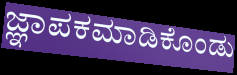
ಜ್ಞಾಪಕಮಾಡಿಕೊಂಡು